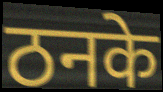
ठनके